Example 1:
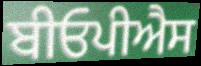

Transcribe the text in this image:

ਬੀਓਪੀਐਸ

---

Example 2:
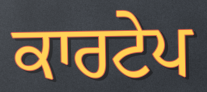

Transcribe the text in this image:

ਕਾਰਟੇਪ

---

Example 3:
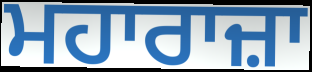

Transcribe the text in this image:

ਮਹਾਰਾਜ਼ਾ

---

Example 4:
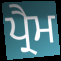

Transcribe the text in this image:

ਪ੍ਰੈਮ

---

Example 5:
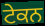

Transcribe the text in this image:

ਟੇਕਨ